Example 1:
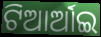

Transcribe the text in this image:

ଟିଆର୍ଆଇ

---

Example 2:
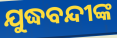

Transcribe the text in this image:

ଯୁଦ୍ଧବନ୍ଦୀଙ୍କ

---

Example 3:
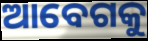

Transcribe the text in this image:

ଆବେଗକୁ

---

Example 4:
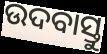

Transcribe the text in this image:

ଉଦବାସ୍ତୁ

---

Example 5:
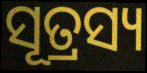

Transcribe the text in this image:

ସୂତ୍ରସ୍ୟ